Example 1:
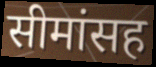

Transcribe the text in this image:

सीमांसह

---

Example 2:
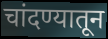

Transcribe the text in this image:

चांदण्यातून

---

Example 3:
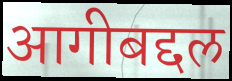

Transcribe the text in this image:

आगीबद्दल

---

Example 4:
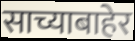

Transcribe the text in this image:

साच्याबाहेर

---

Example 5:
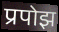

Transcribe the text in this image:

प्रपोझ